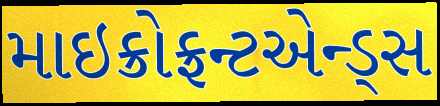
માઇક્રોફ્રન્ટએન્ડ્સ